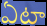
ఏటా